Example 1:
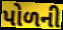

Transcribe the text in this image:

પોળની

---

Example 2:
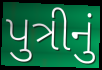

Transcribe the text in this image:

પુત્રીનું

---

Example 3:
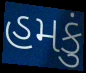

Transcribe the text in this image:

હમકું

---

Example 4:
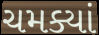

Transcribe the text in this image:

ચમક્યાં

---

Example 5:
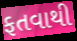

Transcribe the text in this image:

ફતવાથી